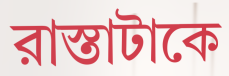
রাস্তাটাকে